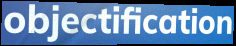
objectification